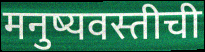
मनुष्यवस्तीची